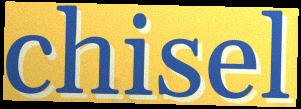
chisel